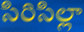
సిరిసిల్లా